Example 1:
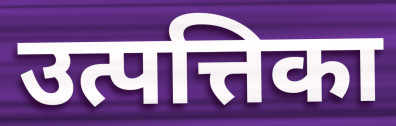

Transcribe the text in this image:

उत्पत्तिका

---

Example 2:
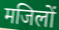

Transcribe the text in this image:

मजिलों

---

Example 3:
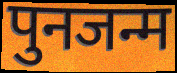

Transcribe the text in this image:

पुनजन्म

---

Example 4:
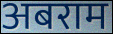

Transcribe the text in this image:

अबराम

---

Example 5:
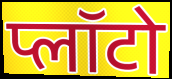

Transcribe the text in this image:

प्लॉटो